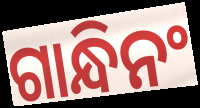
ଗାନ୍ଧିନଂ